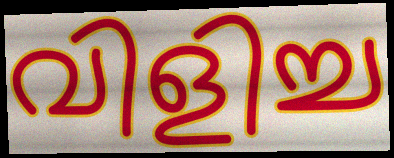
വിളിച്ച